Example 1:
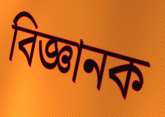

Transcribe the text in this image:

বিজ্ঞানক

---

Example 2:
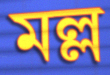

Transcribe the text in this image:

মল্ল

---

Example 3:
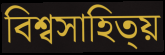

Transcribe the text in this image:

বিশ্বসাহিত্য়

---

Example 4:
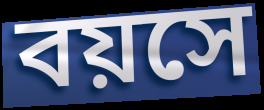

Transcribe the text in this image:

বয়সে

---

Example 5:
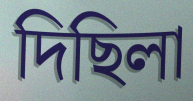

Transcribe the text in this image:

দিছিলা